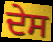
ਦੇਸ